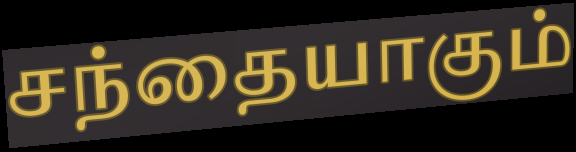
சந்தையாகும்